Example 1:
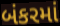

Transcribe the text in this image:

બંકરમાં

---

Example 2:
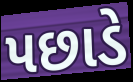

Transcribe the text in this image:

પછાડે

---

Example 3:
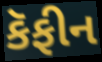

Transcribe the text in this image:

કૅફીન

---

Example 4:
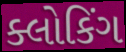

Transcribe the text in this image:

ક્લોકિંગ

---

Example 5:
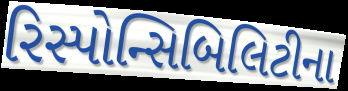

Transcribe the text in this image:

રિસ્પોન્સિબિલિટીના